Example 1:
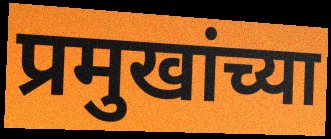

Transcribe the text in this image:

प्रमुखांच्या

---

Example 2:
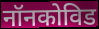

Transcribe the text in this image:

नॉनकोविड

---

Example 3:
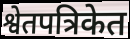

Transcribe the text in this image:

श्वेतपत्रिकेत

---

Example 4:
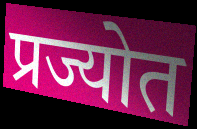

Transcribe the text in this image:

प्रज्योत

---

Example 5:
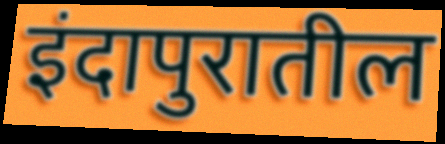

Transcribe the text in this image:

इंदापुरातील